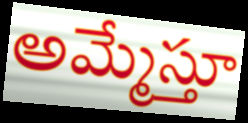
అమ్మేస్తూ